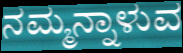
ನಮ್ಮನ್ನಾಳುವ